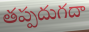
తప్పదుగదా